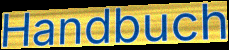
Handbuch